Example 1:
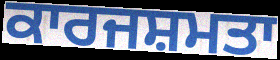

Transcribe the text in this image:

ਕਾਰਜਸ਼ਮਤਾ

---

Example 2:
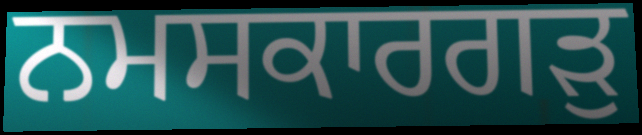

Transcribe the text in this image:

ਨਮਸਕਾਰਗੜੁ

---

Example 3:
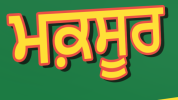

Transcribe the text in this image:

ਮਕ਼ਸੂਰ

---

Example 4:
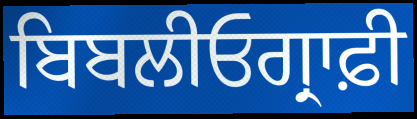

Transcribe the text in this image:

ਬਿਬਲੀਓਗ੍ਰਾਫ਼ੀ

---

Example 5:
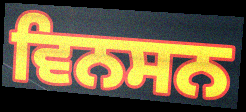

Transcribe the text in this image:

ਵਿਨਸਨ